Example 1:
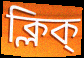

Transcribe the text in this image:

ক্লিক্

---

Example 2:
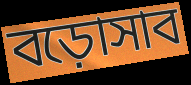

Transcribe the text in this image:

বড়োসাব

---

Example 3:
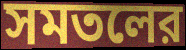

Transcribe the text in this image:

সমতলের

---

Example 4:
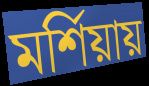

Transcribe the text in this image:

মর্শিয়ায়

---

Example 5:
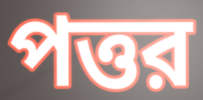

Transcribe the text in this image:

পত্তর